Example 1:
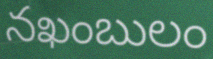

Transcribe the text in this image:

నఖంబులం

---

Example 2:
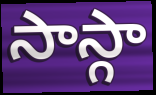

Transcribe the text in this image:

సాస్గా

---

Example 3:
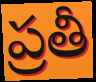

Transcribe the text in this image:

ప్రతీ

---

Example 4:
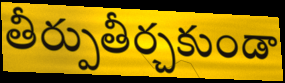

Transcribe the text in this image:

తీర్పుతీర్చకుండా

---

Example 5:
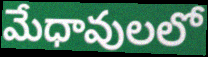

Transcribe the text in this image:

మేధావులలో